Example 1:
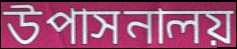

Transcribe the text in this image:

উপাসনালয়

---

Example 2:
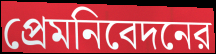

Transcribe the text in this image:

প্রেমনিবেদনের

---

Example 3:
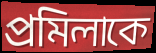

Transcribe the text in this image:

প্রমিলাকে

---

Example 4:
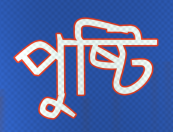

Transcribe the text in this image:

পুষ্টি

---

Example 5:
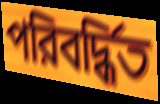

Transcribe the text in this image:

পরিবর্দ্ধিত